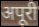
अपूरी